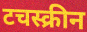
टचस्क्रीन